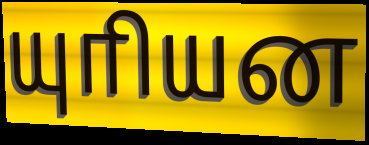
யுரியன